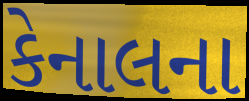
કેનાલના